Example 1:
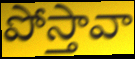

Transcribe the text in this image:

పోస్తావా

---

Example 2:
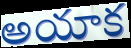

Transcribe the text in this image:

అయాక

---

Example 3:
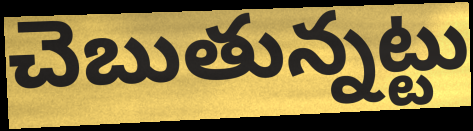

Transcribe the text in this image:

చెబుతున్నట్టు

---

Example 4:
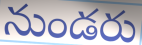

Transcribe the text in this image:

నుండరు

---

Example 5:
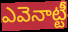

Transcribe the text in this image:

ఎవెనాట్టీ